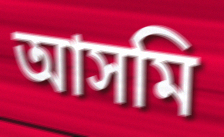
আসমি